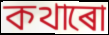
কথাৰো